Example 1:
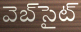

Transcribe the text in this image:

వెబ్‌సైట్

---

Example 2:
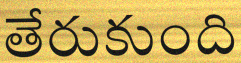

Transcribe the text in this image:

తేరుకుంది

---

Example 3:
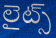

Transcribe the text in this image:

లైట్స్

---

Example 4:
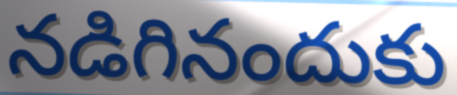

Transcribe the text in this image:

నడిగినందుకు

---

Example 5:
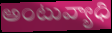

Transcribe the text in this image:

అంటువ్యాధి